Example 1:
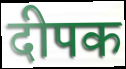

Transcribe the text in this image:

दीपक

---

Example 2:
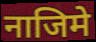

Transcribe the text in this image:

नाजिमे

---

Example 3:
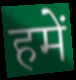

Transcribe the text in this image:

हमें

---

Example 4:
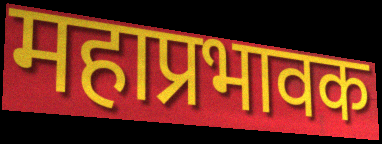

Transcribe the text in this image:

महाप्रभावक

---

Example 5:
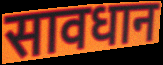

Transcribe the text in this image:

सावधान